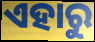
ଏହାରୁ